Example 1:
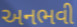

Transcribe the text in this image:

અનભવી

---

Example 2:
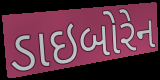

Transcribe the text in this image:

ડાઇબોરેન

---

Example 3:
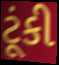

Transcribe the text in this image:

ટૂંકી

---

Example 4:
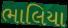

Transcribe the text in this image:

ભાલિયા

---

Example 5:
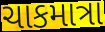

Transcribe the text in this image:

ચાકમાત્રા